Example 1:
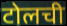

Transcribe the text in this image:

टोलची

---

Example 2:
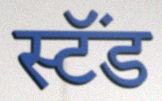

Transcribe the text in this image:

स्टॅंड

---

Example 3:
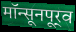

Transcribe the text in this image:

मॉन्सूनपूर्व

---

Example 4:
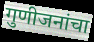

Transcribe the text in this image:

गुणीजनांचा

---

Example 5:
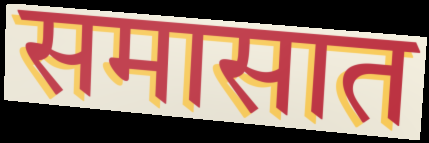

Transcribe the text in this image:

समासात